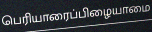
பெரியாரைப்பிழையாமை